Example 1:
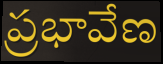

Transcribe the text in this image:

ప్రభావేణ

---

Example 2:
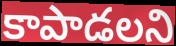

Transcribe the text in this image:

కాపాడలని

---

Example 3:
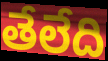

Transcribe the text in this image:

తేలేది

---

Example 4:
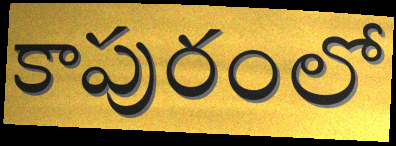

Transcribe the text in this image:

కాపురంలో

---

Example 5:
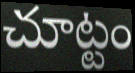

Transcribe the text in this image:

చూట్టం